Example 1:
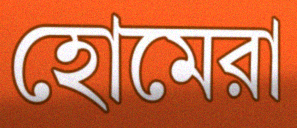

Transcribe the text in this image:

হোমেরা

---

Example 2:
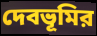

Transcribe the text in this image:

দেবভূমির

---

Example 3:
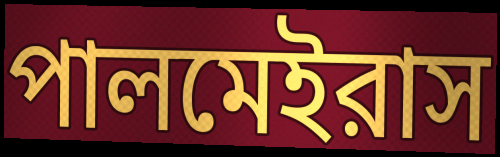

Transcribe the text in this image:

পালমেইরাস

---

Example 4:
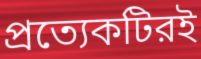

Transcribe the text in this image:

প্রত্যেকটিরই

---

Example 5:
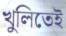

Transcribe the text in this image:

খুলিতেই